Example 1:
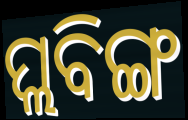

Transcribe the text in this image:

ପ୍ଲବିଙ୍ଗ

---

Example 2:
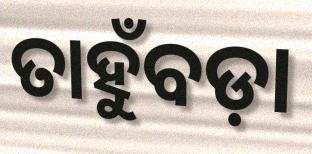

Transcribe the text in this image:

ତାହୁଁବଡ଼ା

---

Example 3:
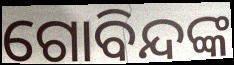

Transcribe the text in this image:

ଗୋବିନ୍ଦଙ୍କ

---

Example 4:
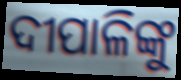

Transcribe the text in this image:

ଦୀପାଳିଙ୍କୁ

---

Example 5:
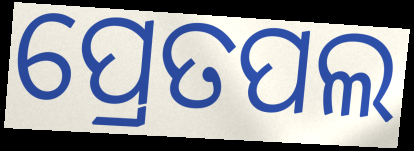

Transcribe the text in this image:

ପ୍ରେତପଲ